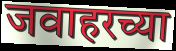
जवाहरच्या